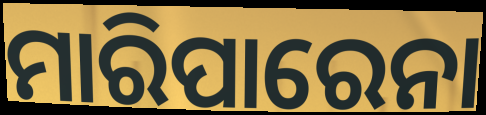
ମାରିପାରେନା